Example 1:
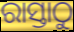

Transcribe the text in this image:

ରାସ୍ତାଠୁ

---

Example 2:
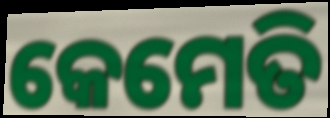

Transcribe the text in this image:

କେମେତି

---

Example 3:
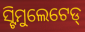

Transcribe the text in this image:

ସ୍ଟିମୁଲେଟେଡ୍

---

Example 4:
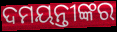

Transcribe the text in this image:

ଦମୟନ୍ତୀଙ୍କର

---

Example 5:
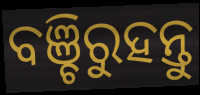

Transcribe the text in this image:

ବଞ୍ଚିରୁହନ୍ତୁ